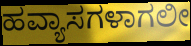
ಹವ್ಯಾಸಗಳಾಗಲೀ